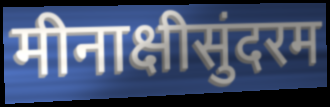
मीनाक्षीसुंदरम